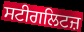
ਸਟੀਗਲਿਟਜ਼